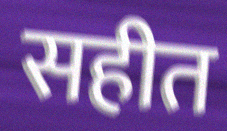
सहीत